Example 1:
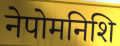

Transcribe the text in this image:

नेपोमनिशि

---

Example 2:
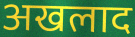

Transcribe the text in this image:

अखलाद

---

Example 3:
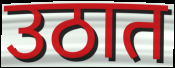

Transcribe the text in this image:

उठात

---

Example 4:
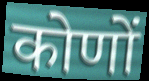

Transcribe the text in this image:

कोणों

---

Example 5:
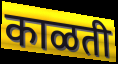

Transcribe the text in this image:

काळती